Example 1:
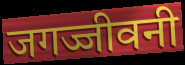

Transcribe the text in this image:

जगज्जीवनी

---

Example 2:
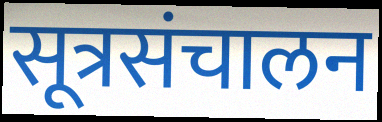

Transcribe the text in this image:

सूत्रसंचालन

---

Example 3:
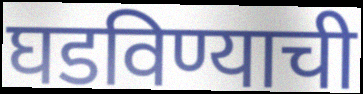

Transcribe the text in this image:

घडविण्याची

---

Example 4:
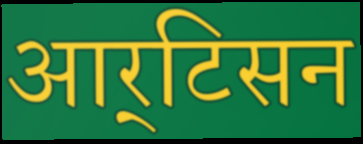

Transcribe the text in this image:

आर्टिसन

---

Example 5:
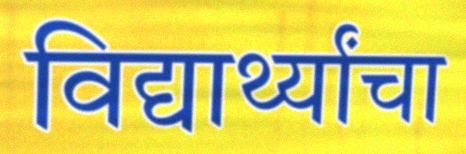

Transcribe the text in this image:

विद्यार्थ्यांचा